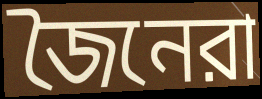
জৈনেরা